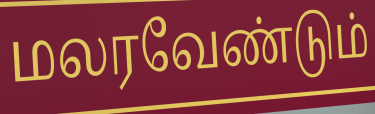
மலரவேண்டும்